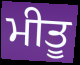
ਮੀਤੂ